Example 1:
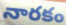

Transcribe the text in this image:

నారకం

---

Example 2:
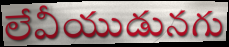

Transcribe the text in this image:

లేవీయుడునగు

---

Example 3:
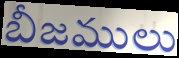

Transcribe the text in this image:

బీజములు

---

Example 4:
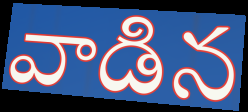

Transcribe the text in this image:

వాడిన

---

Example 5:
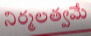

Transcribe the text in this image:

నిర్మలత్వమే